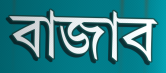
বাজাব